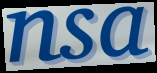
nsa